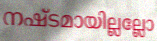
നഷ്ടമായില്ലല്ലോ